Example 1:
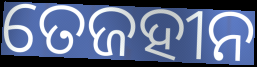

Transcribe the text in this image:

ତେଜହୀନ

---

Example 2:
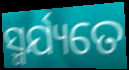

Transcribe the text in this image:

ସ୍ମର୍ଯ୍ୟତେ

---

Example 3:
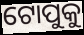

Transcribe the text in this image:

ଟୋପୁକୁ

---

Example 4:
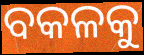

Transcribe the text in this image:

ବକଳକୁ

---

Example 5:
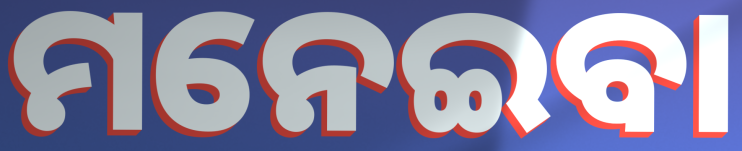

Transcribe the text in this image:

ମନେଇବା